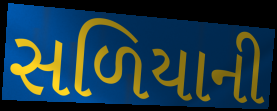
સળિયાની